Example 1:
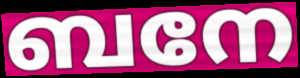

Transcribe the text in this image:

ബനേ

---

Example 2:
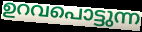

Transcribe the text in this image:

ഉറവപൊട്ടുന്ന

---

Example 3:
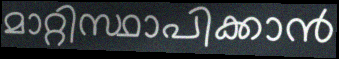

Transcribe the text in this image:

മാറ്റിസ്ഥാപിക്കാൻ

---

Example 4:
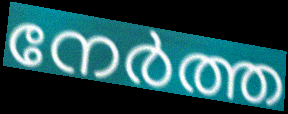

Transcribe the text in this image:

നേർത്ത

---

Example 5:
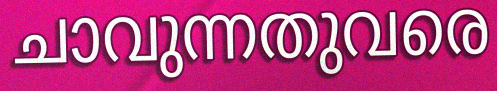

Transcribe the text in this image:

ചാവുന്നതുവരെ